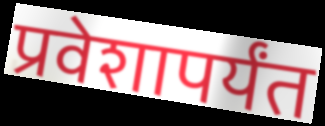
प्रवेशापर्यंत